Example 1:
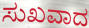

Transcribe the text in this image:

ಸುಖವಾದ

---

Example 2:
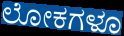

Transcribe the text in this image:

ಲೋಕಗಳೂ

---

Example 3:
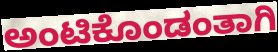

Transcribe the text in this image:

ಅಂಟಿಕೊಂಡಂತಾಗಿ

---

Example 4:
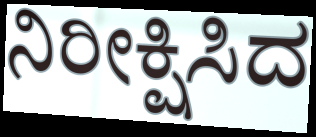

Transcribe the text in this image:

ನಿರೀಕ್ಷಿಸಿದ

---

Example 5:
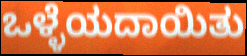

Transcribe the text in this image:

ಒಳ್ಳೆಯದಾಯಿತು